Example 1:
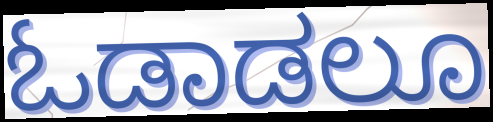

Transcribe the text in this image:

ಓಡಾಡಲೂ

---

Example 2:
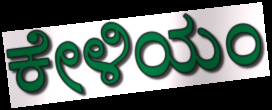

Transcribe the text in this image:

ಕೇಳಿಯಂ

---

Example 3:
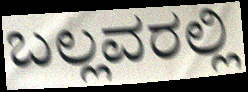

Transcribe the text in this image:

ಬಲ್ಲವರಲ್ಲಿ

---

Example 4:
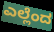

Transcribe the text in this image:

ಎಲ್ಲೆಂದ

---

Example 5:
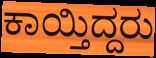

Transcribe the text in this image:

ಕಾಯ್ತಿದ್ದರು